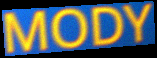
MODY